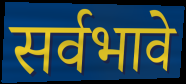
सर्वभावे